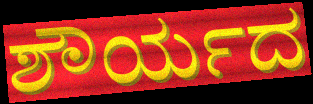
ಶೌರ್ಯದ